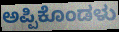
ಅಪ್ಪಿಕೊಂಡಳು